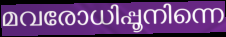
മവരോധിപ്പൂനിന്നെ